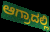
ಆಗ್ರಾದಲ್ಲಿ